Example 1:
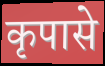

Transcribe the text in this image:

कृपासे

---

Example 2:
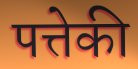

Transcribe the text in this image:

पत्तेकी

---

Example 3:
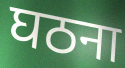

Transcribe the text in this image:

घठना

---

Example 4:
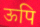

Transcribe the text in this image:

ऊपि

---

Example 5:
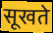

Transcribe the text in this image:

सूखते